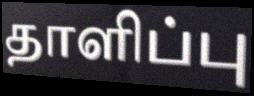
தாளிப்பு